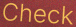
Check